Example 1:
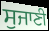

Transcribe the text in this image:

ਸੁਜਾਣੀ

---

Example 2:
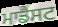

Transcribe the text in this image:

ਮਾਡੈਸਟ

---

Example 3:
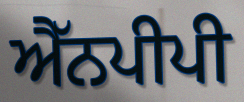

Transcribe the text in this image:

ਐੱਨਪੀਪੀ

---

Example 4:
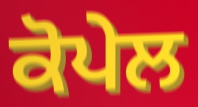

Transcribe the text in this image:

ਕੋਪੇਲ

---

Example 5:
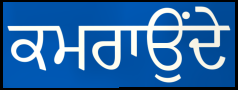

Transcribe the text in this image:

ਕਮਰਾਉਂਦੇ